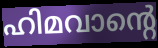
ഹിമവാന്റെ